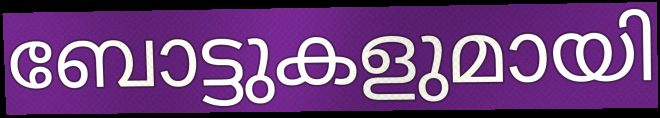
ബോട്ടുകളുമായി